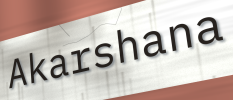
Akarshana